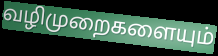
வழிமுறைகளையும்